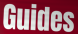
Guides